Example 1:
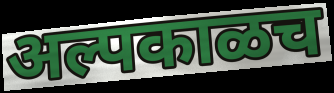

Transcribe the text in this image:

अल्पकाळच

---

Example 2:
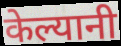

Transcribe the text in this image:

केल्यानी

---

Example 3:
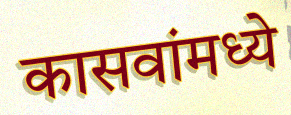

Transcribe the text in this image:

कासवांमध्ये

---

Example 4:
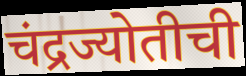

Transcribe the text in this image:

चंद्रज्योतीची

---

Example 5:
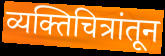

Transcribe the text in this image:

व्यक्तिचित्रांतून